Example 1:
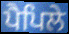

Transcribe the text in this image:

ਪੈਪਿਲੇ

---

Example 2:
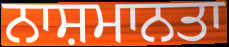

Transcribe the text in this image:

ਨਾਸ਼ਮਾਨਤਾ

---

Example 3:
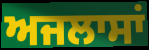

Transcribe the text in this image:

ਅਜਲਾਸਾਂ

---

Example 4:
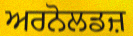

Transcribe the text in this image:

ਅਰਨੋਲਡਜ਼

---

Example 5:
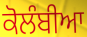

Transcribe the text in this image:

ਕੋਲੰਬੀਆ